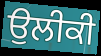
ਉਲੀਕੀ